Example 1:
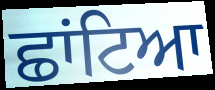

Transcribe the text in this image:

ਛਾਂਟਿਆ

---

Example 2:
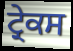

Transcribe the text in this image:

ਟ੍ਰੇਕਸ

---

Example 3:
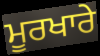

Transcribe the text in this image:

ਮੂਰਖਾਰੇ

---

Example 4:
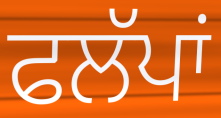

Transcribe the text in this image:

ਫਲੱਪਾਂ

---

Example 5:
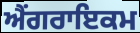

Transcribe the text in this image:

ਐਂਗਰਾਇਕਮ